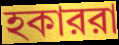
হকাররা